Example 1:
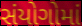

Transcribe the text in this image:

સંયોગોમાં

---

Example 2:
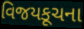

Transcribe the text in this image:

વિજયકૂચના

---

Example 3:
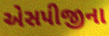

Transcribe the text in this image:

એસપીજીના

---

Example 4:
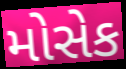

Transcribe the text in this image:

મોસેક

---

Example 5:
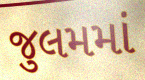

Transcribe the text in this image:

જુલમમાં